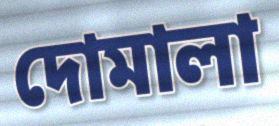
দোমালা